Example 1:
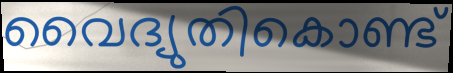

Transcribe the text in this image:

വൈദ്യുതികൊണ്ട്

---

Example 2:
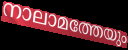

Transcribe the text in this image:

നാലാമത്തേയും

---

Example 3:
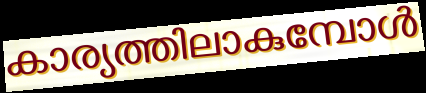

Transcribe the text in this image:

കാര്യത്തിലാകുമ്പോൾ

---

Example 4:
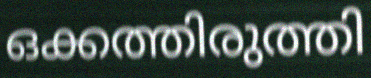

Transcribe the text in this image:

ഒക്കത്തിരുത്തി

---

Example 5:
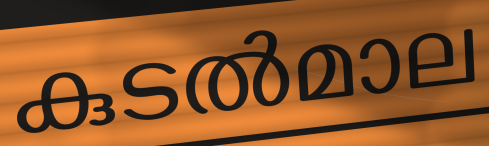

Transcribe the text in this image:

കുടൽമാല